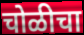
चोळीचा